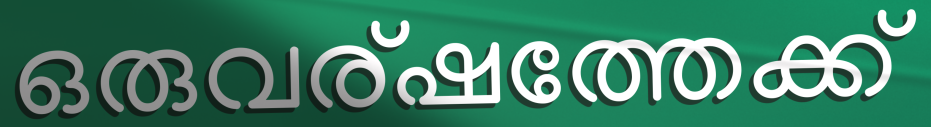
ഒരുവര്ഷത്തേക്ക്